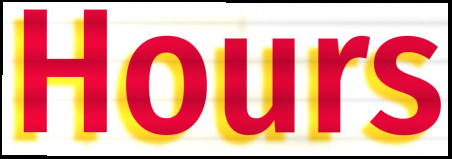
Hours